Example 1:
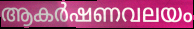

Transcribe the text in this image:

ആകർഷണവലയം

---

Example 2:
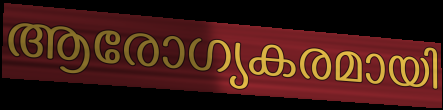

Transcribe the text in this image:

ആരോഗ്യകരമായി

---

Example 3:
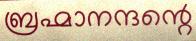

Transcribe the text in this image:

ബ്രഹ്മാനന്ദന്റെ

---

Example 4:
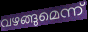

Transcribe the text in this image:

വഴങ്ങുമെന്ന്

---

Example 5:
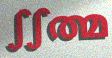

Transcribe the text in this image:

ഽഽത്മ